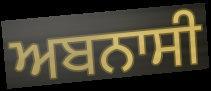
ਅਬਨਾਸੀ